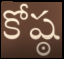
కోష్ఠ